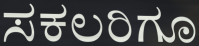
ಸಕಲರಿಗೂ